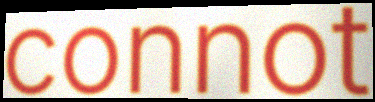
connot